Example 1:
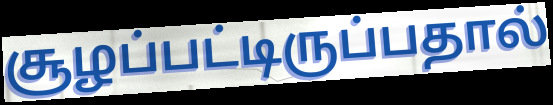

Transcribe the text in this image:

சூழப்பட்டிருப்பதால்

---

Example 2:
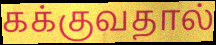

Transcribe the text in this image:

கக்குவதால்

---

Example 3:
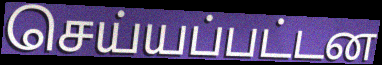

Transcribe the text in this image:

செய்யப்பட்டன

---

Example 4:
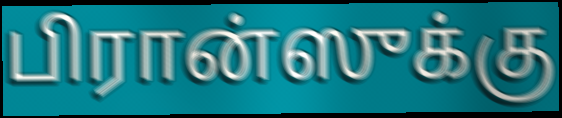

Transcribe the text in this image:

பிரான்ஸுக்கு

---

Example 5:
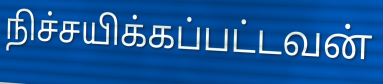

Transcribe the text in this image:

நிச்சயிக்கப்பட்டவன்